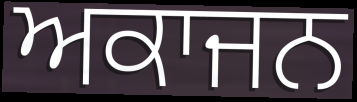
ਅਕਾਜਨ